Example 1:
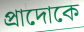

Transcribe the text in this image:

প্রাদোকে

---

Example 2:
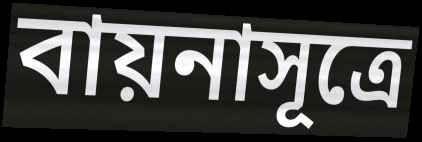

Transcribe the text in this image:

বায়নাসূত্রে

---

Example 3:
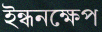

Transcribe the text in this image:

ইন্ধনক্ষেপ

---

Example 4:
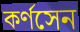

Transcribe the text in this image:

কর্ণসেন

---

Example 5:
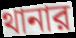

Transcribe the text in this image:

থানার